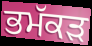
ਭਮੱਕੜ